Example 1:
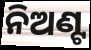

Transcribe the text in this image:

ନିଅଣ୍ଟ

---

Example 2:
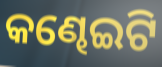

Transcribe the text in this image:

କଣ୍ଢେଇଟି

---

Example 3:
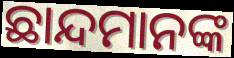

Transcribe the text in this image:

ଛାନ୍ଦମାନଙ୍କ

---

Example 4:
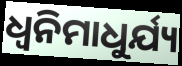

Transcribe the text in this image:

ଧ୍ୱନିମାଧୁର୍ଯ୍ୟ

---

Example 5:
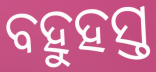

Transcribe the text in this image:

ବହୁହସ୍ତ